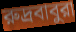
রুদ্রবাবুরা